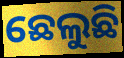
ଛେଲୁଛି